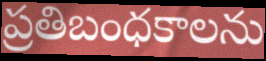
ప్రతిబంధకాలను